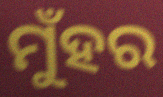
ମୁଁହର